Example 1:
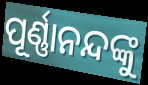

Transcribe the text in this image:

ପୂର୍ଣ୍ଣାନନ୍ଦଙ୍କୁ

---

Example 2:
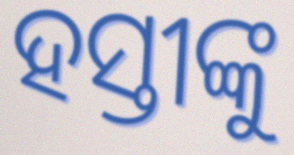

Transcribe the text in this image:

ହସ୍ତୀଙ୍କୁ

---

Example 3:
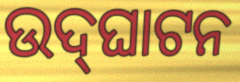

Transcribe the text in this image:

ଉଦ୍‍ଘାଟନ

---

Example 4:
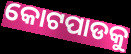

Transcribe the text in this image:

କୋଟପାଡକୁ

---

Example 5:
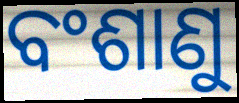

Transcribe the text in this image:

ବଂଶାଣୁ